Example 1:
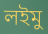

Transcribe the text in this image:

লইমু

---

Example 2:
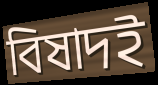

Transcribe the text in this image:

বিষাদই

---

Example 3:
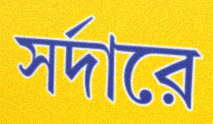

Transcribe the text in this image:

সর্দারে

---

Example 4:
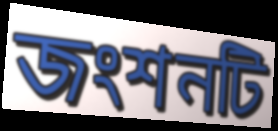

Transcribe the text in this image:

জংশনটি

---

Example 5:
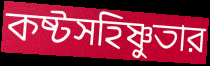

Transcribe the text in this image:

কষ্টসহিষ্ণুতার